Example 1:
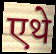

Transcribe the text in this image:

एथे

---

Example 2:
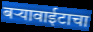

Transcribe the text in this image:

बऱ्यावाईटाचा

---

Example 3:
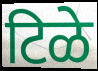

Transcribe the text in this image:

टिळे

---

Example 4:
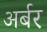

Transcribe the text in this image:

अर्बर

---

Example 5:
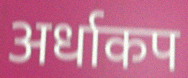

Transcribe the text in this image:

अर्धाकप